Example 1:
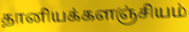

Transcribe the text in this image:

தானியக்களஞ்சியம்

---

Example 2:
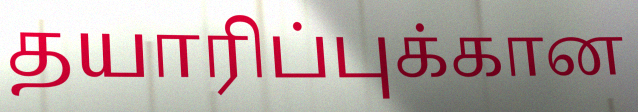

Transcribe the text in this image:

தயாரிப்புக்கான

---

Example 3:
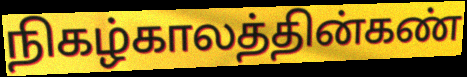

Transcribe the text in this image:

நிகழ்காலத்தின்கண்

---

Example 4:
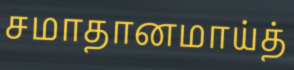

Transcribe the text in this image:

சமாதானமாய்த்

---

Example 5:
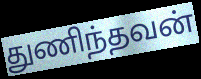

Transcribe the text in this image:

துணிந்தவன்